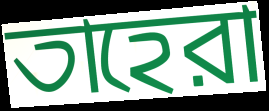
তাহেরা